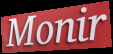
Monir